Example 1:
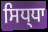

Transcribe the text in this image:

ਸਿਧ੍ਧਾ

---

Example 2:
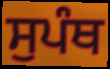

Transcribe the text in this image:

ਸੁਪੰਥ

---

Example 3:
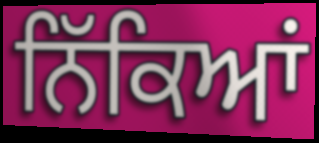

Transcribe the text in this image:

ਨਿੱਕਿਆਂ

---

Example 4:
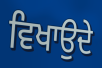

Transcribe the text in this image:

ਵਿਖਾਉਦੇ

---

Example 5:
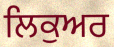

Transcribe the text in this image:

ਲਿਕੁਅਰ